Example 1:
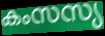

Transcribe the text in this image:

കംസസ്യ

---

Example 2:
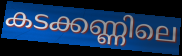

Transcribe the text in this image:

കടക്കണ്ണിലെ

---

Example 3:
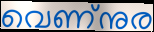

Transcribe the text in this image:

വെണ്നുര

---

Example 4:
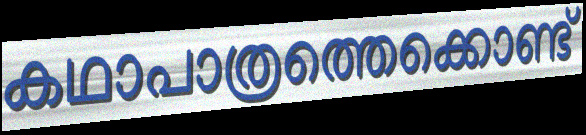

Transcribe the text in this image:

കഥാപാത്രത്തെക്കൊണ്ട്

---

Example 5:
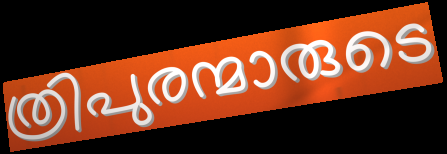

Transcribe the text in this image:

ത്രിപുരന്മാരുടെ